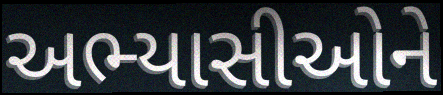
અભ્યાસીઓને